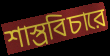
শাস্ত্রবিচারে